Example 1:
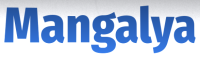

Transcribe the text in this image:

Mangalya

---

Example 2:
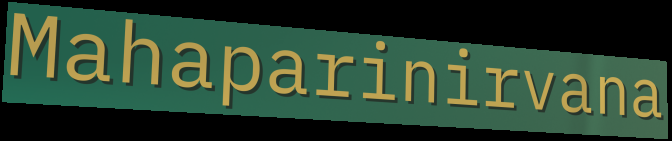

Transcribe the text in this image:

Mahaparinirvana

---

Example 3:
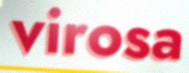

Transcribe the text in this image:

virosa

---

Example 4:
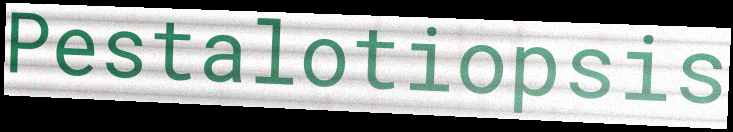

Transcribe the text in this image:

Pestalotiopsis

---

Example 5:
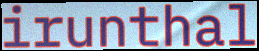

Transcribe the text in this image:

irunthal